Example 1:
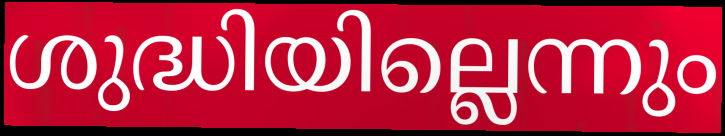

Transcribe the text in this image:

ശുദ്ധിയില്ലെന്നും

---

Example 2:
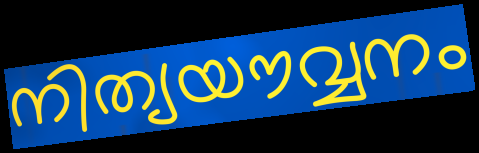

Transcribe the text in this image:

നിത്യയൗവ്വനം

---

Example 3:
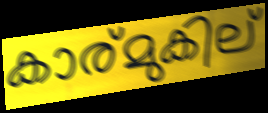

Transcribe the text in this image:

കാര്മുകില്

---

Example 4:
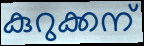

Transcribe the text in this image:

കുറുക്കന്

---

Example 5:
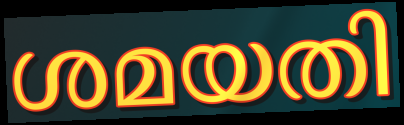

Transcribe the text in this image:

ശമയതി